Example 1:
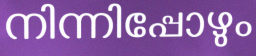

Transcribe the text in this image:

നിന്നിപ്പോഴും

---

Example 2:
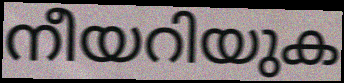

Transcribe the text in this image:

നീയറിയുക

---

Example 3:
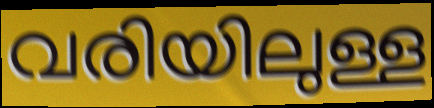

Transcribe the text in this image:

വരിയിലുള്ള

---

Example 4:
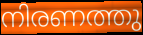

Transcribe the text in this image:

നിരണത്തു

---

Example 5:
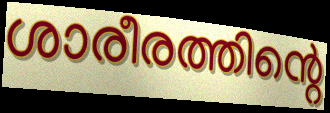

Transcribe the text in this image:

ശാരീരത്തിന്റെ